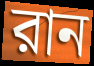
রান